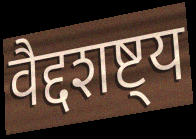
वैद्दशष्ट्य